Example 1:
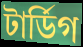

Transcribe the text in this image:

টার্ডিগ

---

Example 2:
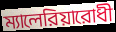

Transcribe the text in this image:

ম্যালেরিয়ারোধী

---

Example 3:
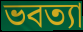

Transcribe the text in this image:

ভবত্যা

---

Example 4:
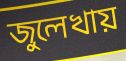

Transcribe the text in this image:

জুলেখায়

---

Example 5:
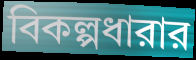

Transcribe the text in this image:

বিকল্পধারার